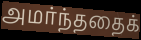
அமர்ந்ததைக்